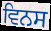
ਵਿਨਸ